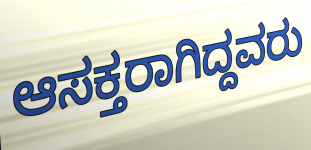
ಆಸಕ್ತರಾಗಿದ್ದವರು